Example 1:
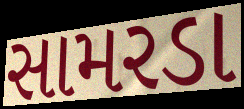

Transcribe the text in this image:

સામરડા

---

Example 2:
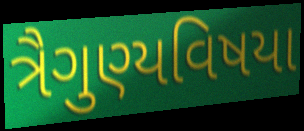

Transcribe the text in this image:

ત્રૈગુણ્યવિષયા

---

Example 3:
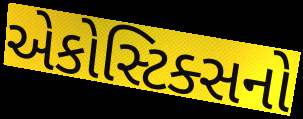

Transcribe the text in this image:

એકોસ્ટિક્સનો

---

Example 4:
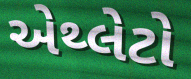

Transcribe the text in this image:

એથ્લેટો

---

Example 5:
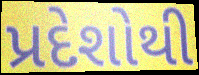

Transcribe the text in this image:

પ્રદેશોથી